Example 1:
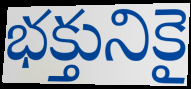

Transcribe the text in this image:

భక్తునికై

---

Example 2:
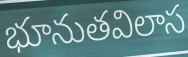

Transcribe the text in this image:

భూనుతవిలాస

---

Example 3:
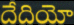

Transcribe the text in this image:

దేదియో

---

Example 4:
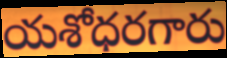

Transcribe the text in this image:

యశోధరగారు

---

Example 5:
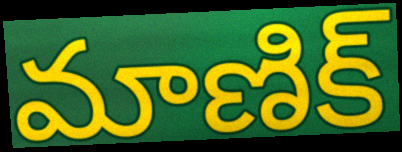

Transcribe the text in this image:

మాణిక్